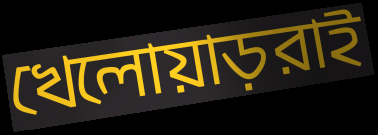
খেলোয়াড়রাই